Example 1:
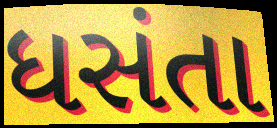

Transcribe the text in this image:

ધસંતા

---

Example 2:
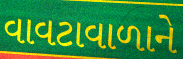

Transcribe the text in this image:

વાવટાવાળાને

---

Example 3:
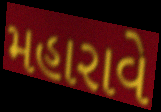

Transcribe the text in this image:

મહારાવે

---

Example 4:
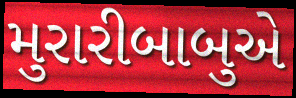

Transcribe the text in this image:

મુરારીબાબુએ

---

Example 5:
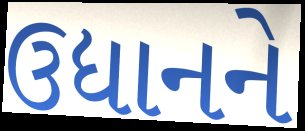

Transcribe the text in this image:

ઉદ્યાનને